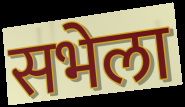
सभेला